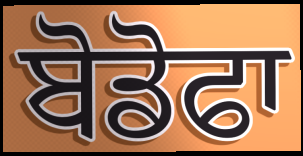
ਬੋਡੋਫਾ